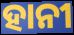
ହାନୀ